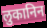
लुकानिन